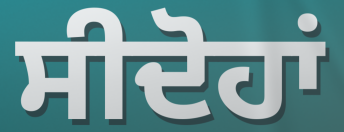
ਸੀਦੋਹਾਂ